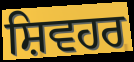
ਸ਼ਿਵਹਰ